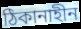
ঠিকানাহীন